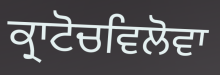
ਕ੍ਰਾਟੋਚਵਿਲੋਵਾ